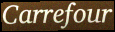
Carrefour